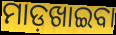
ମାଡ଼ଖାଇବା